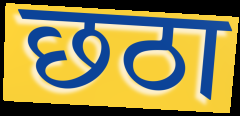
छठा